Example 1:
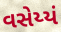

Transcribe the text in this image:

વસેય્યં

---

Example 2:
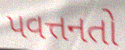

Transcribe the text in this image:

પવત્તનતો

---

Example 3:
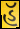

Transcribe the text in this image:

હૅ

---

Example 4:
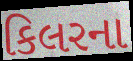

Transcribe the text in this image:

કિલરના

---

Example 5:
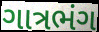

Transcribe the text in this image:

ગાત્રભંગ